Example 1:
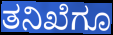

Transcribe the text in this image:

ತನಿಖೆಗೂ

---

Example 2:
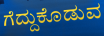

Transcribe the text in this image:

ಗೆದ್ದುಕೊಡುವ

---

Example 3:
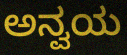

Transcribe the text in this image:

ಅನ್ವಯ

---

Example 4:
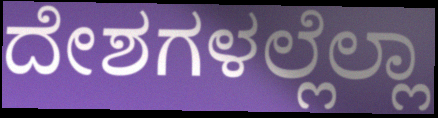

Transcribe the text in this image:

ದೇಶಗಳಲ್ಲೆಲ್ಲಾ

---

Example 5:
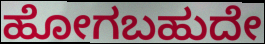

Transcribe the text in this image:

ಹೋಗಬಹುದೇ